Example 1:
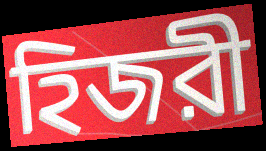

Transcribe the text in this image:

হিজরী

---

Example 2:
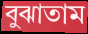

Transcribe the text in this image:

বুঝাতাম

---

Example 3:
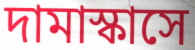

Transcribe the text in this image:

দামাস্কাসে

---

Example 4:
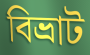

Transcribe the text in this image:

বিভ্রাট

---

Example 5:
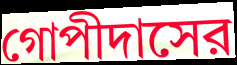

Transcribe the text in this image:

গোপীদাসের